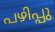
പഴിപ്പു